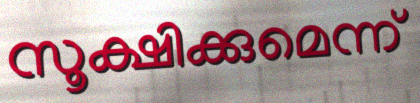
സൂക്ഷിക്കുമെന്ന്